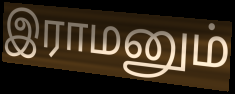
இராமனும்